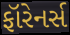
ફૉરેનર્સ